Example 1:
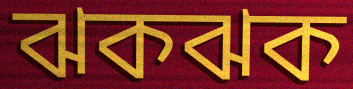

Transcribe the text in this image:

ঝকঝক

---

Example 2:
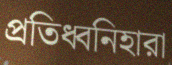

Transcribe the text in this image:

প্রতিধ্বনিহারা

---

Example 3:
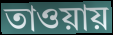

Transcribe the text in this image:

তাওয়ায়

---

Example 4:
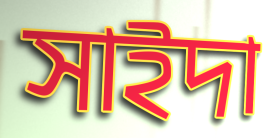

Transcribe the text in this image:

সাইদা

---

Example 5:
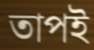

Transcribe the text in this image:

তাপই